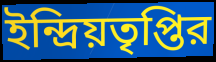
ইন্দ্রিয়তৃপ্তির